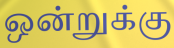
ஒன்றுக்கு